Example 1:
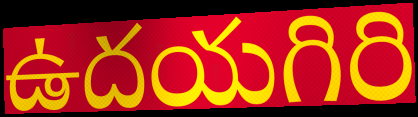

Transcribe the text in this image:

ఉదయగిరి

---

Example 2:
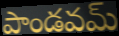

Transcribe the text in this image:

పాండవమ్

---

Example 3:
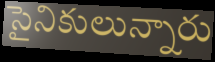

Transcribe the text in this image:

సైనికులున్నారు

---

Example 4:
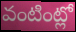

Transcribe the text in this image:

వంటింట్లో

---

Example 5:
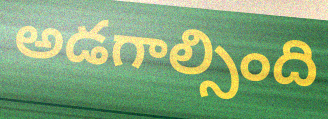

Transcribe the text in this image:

అడగాల్సింది